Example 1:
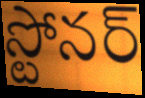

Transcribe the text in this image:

స్టోనర్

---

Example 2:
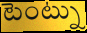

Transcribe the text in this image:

టెంట్ను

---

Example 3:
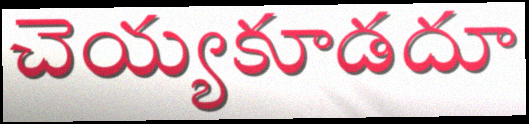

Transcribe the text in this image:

చెయ్యకూడదూ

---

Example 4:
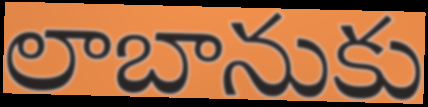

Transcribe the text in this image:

లాబానుకు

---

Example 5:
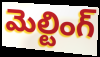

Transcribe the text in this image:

మెల్టింగ్